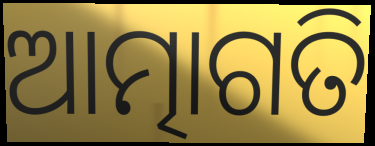
ଆତ୍ମାଗତି